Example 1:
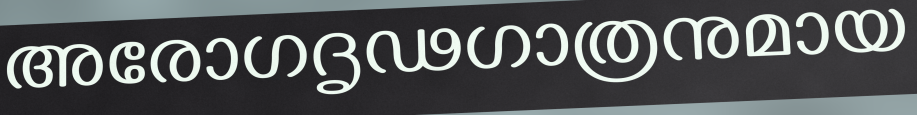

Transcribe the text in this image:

അരോഗദൃഢഗാത്രനുമായ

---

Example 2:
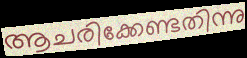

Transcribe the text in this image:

ആചരിക്കേണ്ടതിന്നു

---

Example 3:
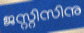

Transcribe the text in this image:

ജസ്റ്റിസിനു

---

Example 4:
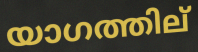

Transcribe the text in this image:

യാഗത്തില്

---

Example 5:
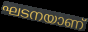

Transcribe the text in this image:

ഘടനയാണ്